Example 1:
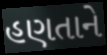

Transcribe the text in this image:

હણતાને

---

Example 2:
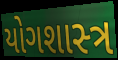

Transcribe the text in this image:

યોગશાસ્‍ત્ર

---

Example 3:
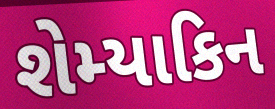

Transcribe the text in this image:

શેમ્યાકિન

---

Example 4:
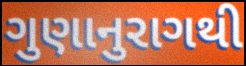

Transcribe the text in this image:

ગુણાનુરાગથી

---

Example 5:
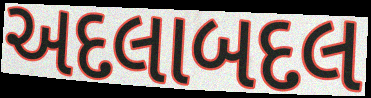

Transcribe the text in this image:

અદલાબદલ